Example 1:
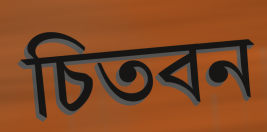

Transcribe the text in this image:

চিতবন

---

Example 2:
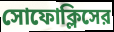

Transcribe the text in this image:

সোফোক্লিসের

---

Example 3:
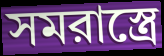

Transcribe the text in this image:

সমরাস্ত্রে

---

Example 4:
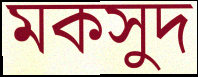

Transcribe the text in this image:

মকসুদ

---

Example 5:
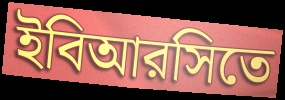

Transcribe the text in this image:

ইবিআরসিতে